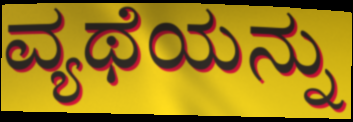
ವ್ಯಥೆಯನ್ನು